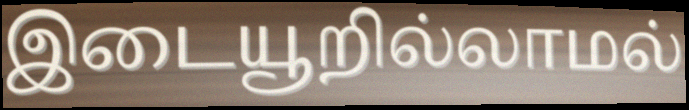
இடையூறில்லாமல்